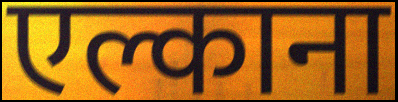
एल्काना